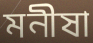
মনীষা